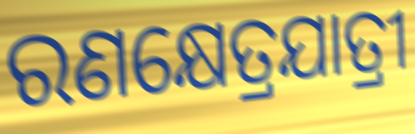
ରଣକ୍ଷେତ୍ରଯାତ୍ରୀ